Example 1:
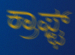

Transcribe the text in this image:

ಕ್ರಾಫ್ಟ್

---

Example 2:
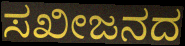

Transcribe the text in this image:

ಸಖೀಜನದ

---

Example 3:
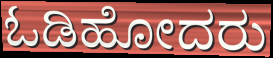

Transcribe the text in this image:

ಓಡಿಹೋದರು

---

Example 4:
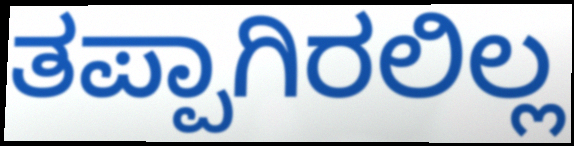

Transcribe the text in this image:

ತಪ್ಪಾಗಿರಲಿಲ್ಲ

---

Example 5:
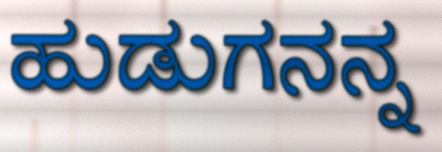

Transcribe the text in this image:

ಹುಡುಗನನ್ನ